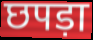
छपड़ा